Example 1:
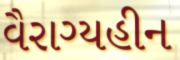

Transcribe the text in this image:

વૈરાગ્યહીન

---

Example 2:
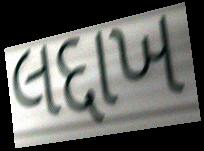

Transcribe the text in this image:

લદ્દાખ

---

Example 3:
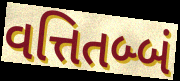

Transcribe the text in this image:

વત્તિતબ્બં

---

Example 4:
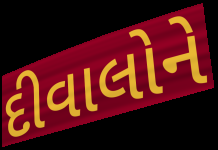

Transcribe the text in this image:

દીવાલોને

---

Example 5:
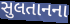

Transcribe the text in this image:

સુલતાનના